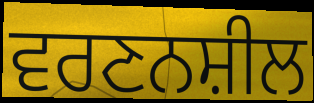
ਵਰਣਨਸ਼ੀਲ